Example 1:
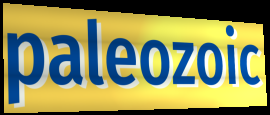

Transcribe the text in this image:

paleozoic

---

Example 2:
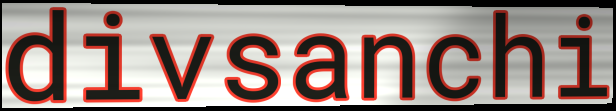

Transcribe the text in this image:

divsanchi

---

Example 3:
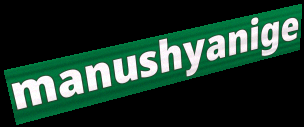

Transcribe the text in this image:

manushyanige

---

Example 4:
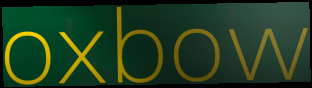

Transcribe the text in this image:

oxbow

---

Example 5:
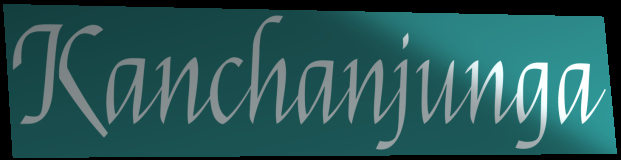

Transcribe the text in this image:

Kanchanjunga